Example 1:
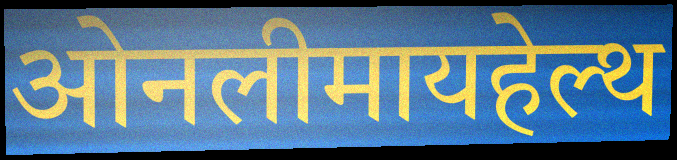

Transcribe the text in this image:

ओनलीमायहेल्थ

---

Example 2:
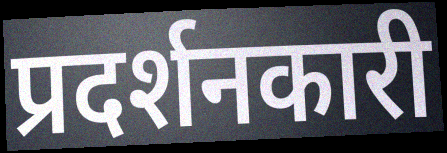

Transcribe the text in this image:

प्रदर्शनकारी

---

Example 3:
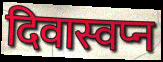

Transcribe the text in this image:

दिवास्‍वप्‍न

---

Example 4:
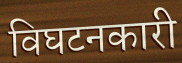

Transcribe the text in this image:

विघटनकारी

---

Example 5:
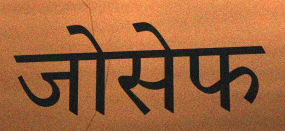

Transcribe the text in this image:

जोसेफ